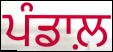
ਪੰਡਾਲ਼